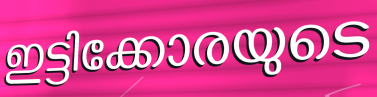
ഇട്ടിക്കോരയുടെ